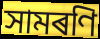
সামৰণি